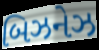
બિઝનેઝ